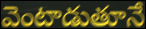
వెంటాడుతూనే